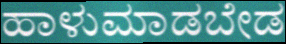
ಹಾಳುಮಾಡಬೇಡ